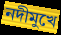
নদীমুখে